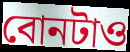
বোনটাও